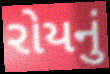
રોયનું